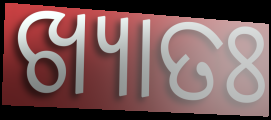
ଖ୍ୟାତଃ